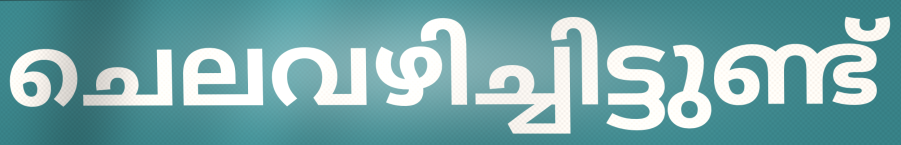
ചെലവഴിച്ചിട്ടുണ്ട്